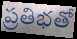
ప్రతిభతో